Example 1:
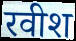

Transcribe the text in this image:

रवीश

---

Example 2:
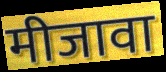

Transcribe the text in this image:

मीजावा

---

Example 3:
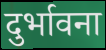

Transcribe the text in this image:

दुर्भावना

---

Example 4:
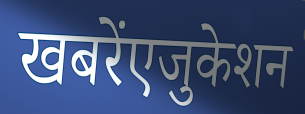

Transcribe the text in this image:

खबरेंएजुकेशन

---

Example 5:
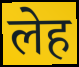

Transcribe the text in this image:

लेह